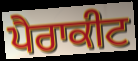
ਪੈਰਾਕੀਟ